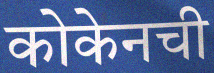
कोकेनची